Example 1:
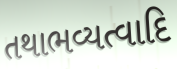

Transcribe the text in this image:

તથાભવ્યત્વાદિ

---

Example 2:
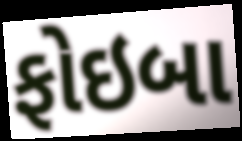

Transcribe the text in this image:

ફોઇબા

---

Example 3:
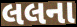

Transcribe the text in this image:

લલના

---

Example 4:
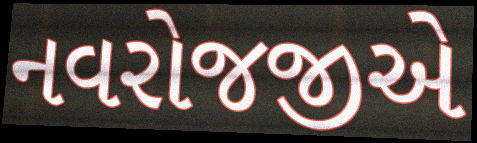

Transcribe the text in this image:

નવરોજજીએ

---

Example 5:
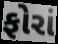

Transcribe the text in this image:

ફોરાં